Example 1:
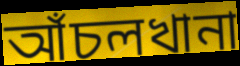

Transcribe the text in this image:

আঁচলখানা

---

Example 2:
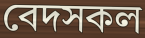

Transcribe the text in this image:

বেদসকল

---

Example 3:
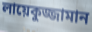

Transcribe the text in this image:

লায়েকুজ্জামান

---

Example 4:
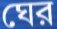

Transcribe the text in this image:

ঘের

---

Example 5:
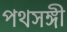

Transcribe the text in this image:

পথসঙ্গী